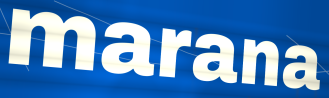
marana